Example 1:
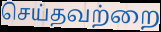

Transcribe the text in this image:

செய்தவற்றை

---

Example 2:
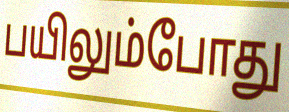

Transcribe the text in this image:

பயிலும்போது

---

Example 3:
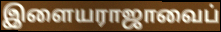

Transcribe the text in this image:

இளையராஜாவைப்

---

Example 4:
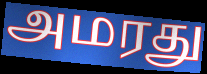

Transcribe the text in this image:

அமரது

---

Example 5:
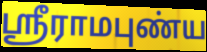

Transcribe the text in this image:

ஸ்ரீராமபுண்ய